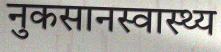
नुकसानस्वास्थ्य